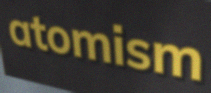
atomism